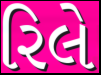
રિલે